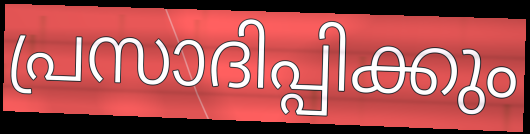
പ്രസാദിപ്പിക്കും